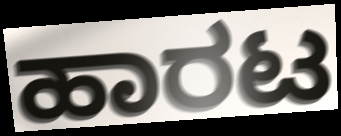
ಹಾರಟ